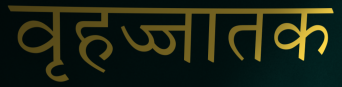
वृहज्जातक